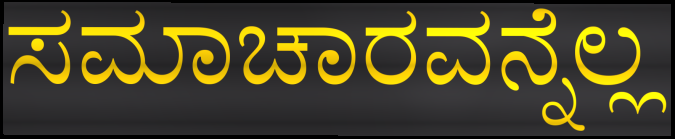
ಸಮಾಚಾರವನ್ನೆಲ್ಲ